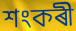
শংকৰী